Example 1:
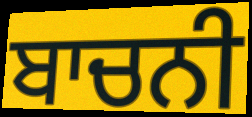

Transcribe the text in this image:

ਬਾਚਨੀ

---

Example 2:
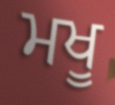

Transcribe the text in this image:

ਮਖੂ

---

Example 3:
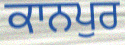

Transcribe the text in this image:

ਕਾਨਪੁਰ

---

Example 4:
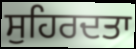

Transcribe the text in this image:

ਸੁਹਿਰਦਤਾ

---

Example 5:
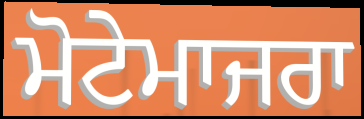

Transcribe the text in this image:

ਮੋਟੇਮਾਜਰਾ